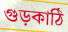
গুড়কাঠি